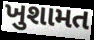
ખુશામત